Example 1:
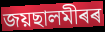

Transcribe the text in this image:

জয়ছালমীৰৰ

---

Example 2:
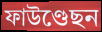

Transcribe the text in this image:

ফাউণ্ডেছন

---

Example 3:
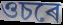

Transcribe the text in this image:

ওচৰে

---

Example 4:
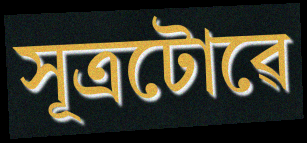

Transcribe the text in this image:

সূত্ৰটোৱে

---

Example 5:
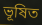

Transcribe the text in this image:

ভূষিত